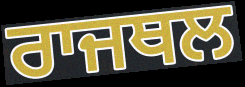
ਰਾਜਥਲ